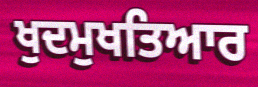
ਖੁਦਮੁਖਤਿਆਰ